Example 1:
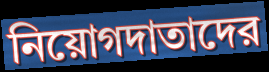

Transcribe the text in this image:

নিয়োগদাতাদের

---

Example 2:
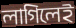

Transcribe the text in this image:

লাগিলেই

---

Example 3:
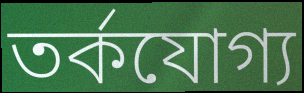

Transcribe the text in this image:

তর্কযোগ্য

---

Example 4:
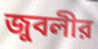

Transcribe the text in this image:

জুবলীর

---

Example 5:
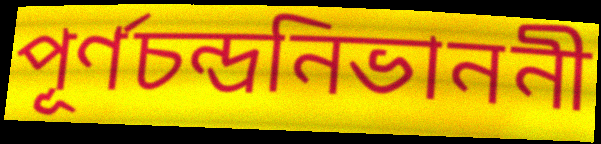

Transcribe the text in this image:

পূর্ণচন্দ্রনিভাননী